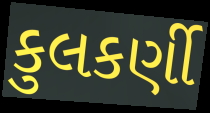
કુલકર્ણી